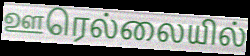
ஊரெல்லையில்